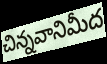
చిన్నవానిమీద